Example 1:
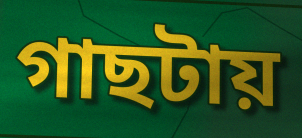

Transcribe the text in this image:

গাছটায়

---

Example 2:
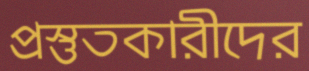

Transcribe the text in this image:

প্রস্তুতকারীদের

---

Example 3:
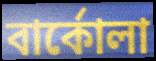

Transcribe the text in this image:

বার্কোলা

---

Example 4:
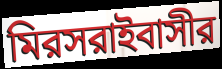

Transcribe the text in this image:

মিরসরাইবাসীর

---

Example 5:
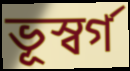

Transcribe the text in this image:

ভূস্বর্গ